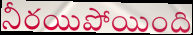
నీరయిపోయింది